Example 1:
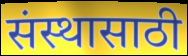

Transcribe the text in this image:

संस्थासाठी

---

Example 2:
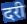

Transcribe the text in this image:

दरी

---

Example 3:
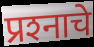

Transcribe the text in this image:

प्रश्‍नाचे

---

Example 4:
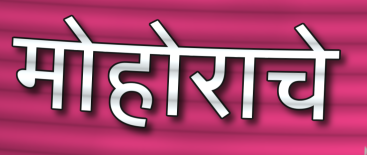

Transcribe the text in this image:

मोहोराचे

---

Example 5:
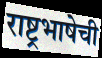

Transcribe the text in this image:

राष्ट्रभाषेची